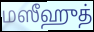
மஸீஹுத்